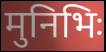
मुनिभिः